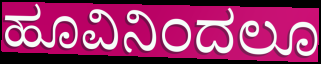
ಹೂವಿನಿಂದಲೂ